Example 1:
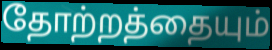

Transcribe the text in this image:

தோற்றத்தையும்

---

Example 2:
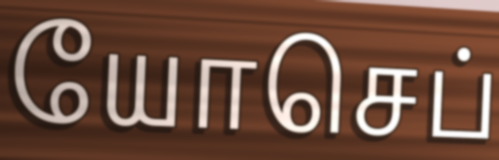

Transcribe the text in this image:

யோசெப்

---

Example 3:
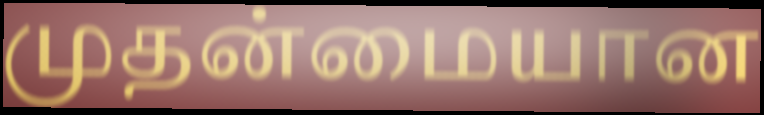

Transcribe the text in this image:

முதன்மையான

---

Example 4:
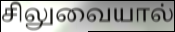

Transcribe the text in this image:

சிலுவையால்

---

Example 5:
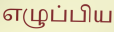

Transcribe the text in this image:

எழுப்பிய